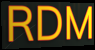
RDM